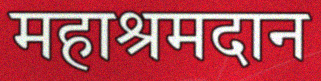
महाश्रमदान